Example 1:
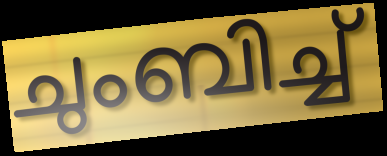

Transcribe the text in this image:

ചുംബിച്ച്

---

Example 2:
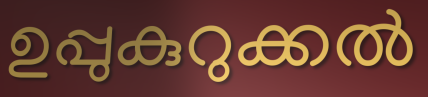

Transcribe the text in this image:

ഉപ്പുകുറുക്കൽ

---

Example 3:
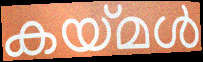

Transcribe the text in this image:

കയ്മൾ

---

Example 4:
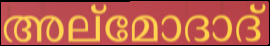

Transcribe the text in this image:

അല്മോദാദ്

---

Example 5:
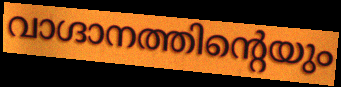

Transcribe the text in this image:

വാഗ്ദാനത്തിന്റെയും